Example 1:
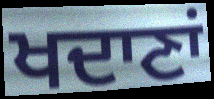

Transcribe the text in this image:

ਖਦਾਣਾਂ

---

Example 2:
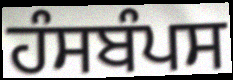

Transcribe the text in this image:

ਹੰਸਬੰਪਸ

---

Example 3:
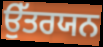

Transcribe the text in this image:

ਉੱਤਰਯਨ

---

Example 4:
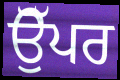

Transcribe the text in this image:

ਉੋੱਪਰ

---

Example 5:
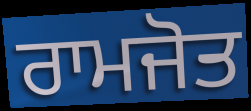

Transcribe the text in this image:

ਰਾਮਜੋਤ